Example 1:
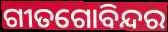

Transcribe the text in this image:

ଗୀତଗୋବିନ୍ଦର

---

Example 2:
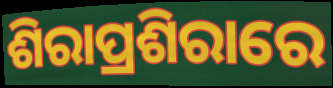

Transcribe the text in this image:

ଶିରାପ୍ରଶିରାରେ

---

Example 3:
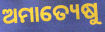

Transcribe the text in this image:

ଅମାତ୍ୟେଷୁ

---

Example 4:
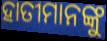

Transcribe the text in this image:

ହାତୀମାନଙ୍କୁ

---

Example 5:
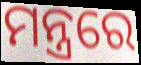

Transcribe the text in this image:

ମନ୍ତ୍ରରେ